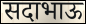
सदाभाऊ